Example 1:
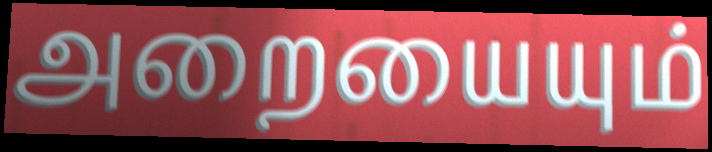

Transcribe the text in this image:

அறையையும்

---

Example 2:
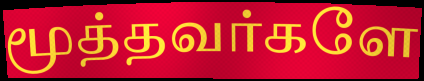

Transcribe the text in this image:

மூத்தவர்களே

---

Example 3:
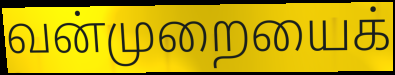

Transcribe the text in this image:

வன்முறையைக்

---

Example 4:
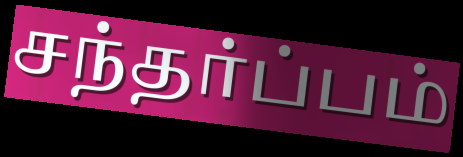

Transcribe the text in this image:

சந்தர்ப்பம்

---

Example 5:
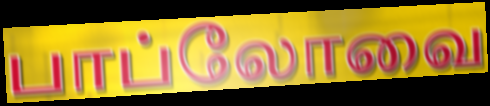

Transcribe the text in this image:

பாப்லோவை